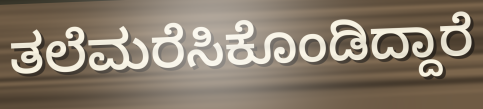
ತಲೆಮರೆಸಿಕೊಂಡಿದ್ದಾರೆ